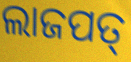
ଲାଜପତ୍